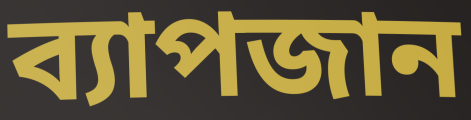
ব্যাপজান